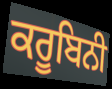
ਕਰੂਬਿਨੀ